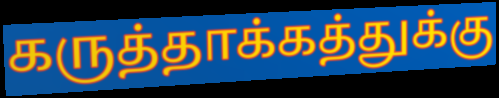
கருத்தாக்கத்துக்கு